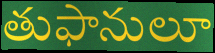
తుఫానులూ